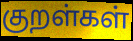
குறள்கள்